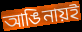
আঙিনায়ই